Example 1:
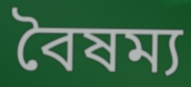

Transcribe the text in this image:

বৈষম্য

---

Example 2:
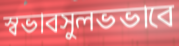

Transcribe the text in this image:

স্বভাবসুলভভাবে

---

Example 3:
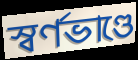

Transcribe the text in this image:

স্বর্ণভাণ্ডে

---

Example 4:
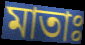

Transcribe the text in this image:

মাতাঃ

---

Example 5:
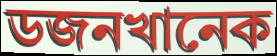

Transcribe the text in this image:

ডজনখানেক